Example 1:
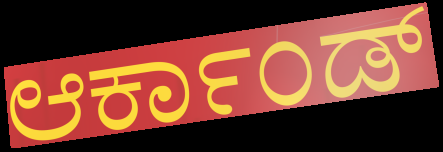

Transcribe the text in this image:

ಆರ್ಕಾಂಡ್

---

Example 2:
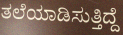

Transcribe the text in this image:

ತಲೆಯಾಡಿಸುತ್ತಿದ್ದೆ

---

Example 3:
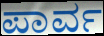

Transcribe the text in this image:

ಪಾರ್ವ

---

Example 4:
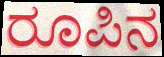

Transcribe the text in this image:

ರೂಪಿನ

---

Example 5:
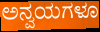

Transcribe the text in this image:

ಅನ್ವಯಗಳೂ